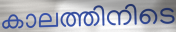
കാലത്തിനിടെ